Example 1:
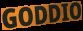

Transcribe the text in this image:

GODDIO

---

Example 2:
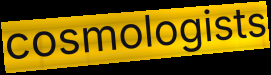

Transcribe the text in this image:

cosmologists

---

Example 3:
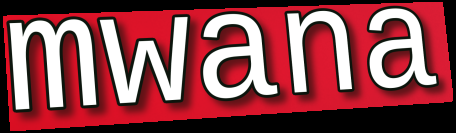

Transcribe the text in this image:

mwana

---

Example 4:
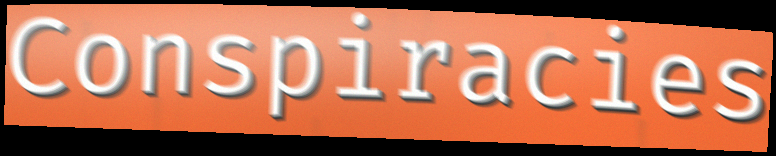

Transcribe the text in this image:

Conspiracies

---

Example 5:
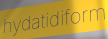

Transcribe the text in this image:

hydatidiform